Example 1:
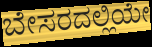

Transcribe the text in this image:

ಬೇಸರದಲ್ಲಿಯೇ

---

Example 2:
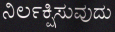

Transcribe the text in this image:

ನಿರ್ಲಕ್ಷಿಸುವುದು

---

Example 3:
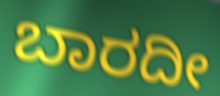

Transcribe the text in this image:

ಬಾರದೀ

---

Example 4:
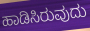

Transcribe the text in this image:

ಹಾಡಿಸಿರುವುದು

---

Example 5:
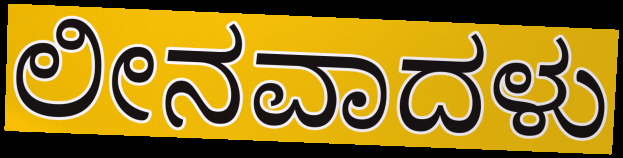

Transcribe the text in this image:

ಲೀನವಾದಳು